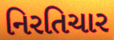
નિરતિચાર